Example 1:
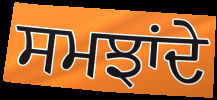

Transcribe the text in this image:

ਸਮਝਾਂਦੇ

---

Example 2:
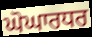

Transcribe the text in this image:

ਘੋਘਾਰਧਰ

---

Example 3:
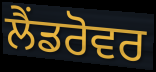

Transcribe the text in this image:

ਲੈਂਡਰੋਵਰ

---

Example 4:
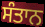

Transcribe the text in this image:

ਸੰਤਾਨ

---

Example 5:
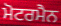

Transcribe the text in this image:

ਮੋਟਰਮੈਨ